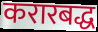
करारबद्ध